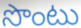
సొంటు